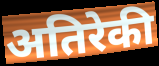
अतिरेकी